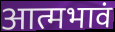
आत्मभावं